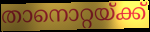
താനൊറ്റയ്ക്ക്